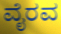
ವೈರವ